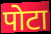
पोटा